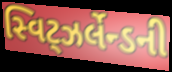
સ્વિટ્ઝર્લેન્ડની